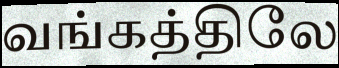
வங்கத்திலே